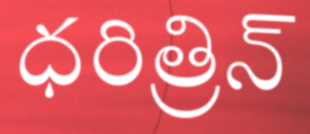
ధరిత్రిన్